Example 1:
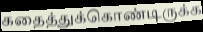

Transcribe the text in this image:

கதைத்துக்கொண்டிருக்க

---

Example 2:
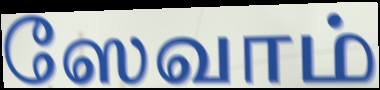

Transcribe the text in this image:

ஸேவாம்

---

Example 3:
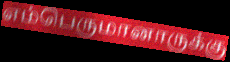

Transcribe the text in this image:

எம்பெருமானாருக்கு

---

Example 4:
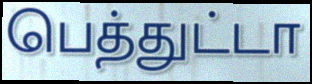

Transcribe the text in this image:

பெத்துட்டா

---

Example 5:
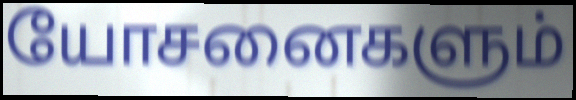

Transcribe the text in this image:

யோசனைகளும்